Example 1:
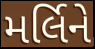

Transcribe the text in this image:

મર્લિને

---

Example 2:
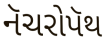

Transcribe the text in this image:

નૅચરોપૅથ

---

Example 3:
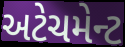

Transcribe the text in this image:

અટેચમેન્ટ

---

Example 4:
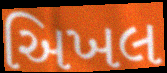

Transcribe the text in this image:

અિખલ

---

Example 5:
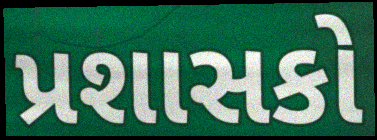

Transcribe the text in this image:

પ્રશાસકો